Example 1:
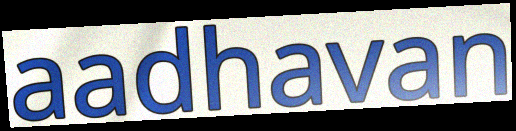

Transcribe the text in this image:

aadhavan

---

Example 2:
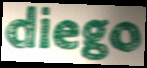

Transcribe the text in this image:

diego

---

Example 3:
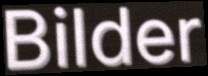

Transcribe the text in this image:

Bilder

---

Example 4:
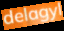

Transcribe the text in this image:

delagyl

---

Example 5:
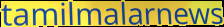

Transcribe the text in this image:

tamilmalarnews